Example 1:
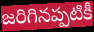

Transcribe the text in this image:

జరిగినప్పటికీ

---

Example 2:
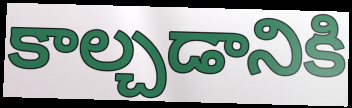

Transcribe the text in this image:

కాల్చడానికి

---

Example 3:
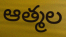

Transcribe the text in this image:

ఆత్మల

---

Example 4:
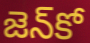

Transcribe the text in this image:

జెన్‌కో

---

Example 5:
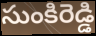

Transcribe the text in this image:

సుంకిరెడ్డి